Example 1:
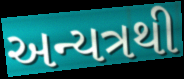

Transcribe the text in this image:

અન્યત્રથી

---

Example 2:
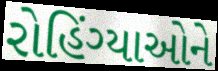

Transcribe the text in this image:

રોહિંગ્યાઓને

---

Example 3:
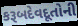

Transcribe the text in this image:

કરૂબદેવદૂતોની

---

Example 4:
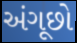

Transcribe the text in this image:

અંગૂછો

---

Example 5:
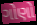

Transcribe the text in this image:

ગોણો